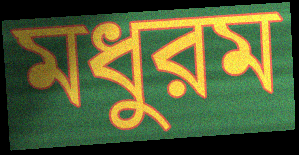
মধুরম